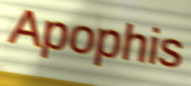
Apophis